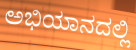
ಅಭಿಯಾನದಲ್ಲಿ